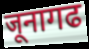
जूनागढ